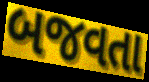
બજવતા